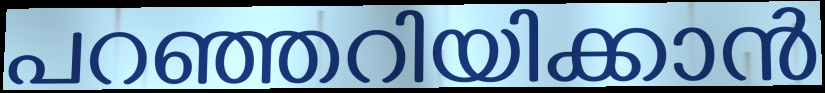
പറഞ്ഞറിയിക്കാൻ